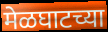
मेळघाटच्या